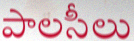
పాలసీలు